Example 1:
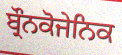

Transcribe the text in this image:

ਬ੍ਰੌਨਕੋਜੇਨਿਕ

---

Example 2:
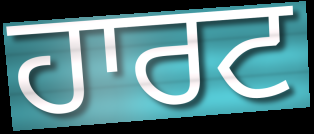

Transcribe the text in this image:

ਹਾਰਟ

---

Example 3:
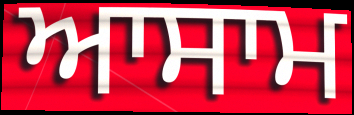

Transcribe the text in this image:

ਆਸਾਮ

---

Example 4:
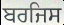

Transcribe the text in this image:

ਬਰਜਿਸ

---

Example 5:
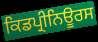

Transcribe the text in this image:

ਕਿਡਪ੍ਰੀਨਿਊਰਸ